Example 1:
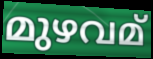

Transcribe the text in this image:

മുഴവമ്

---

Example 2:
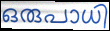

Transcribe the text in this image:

ഒരുപാധി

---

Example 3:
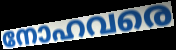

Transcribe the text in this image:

നോഹവരെ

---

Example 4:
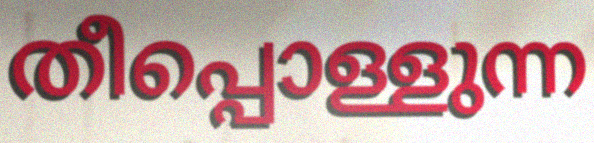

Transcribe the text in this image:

തീപ്പൊള്ളുന്ന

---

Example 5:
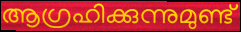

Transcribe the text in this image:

ആഗ്രഹിക്കുന്നുമുണ്ട്